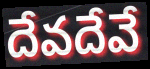
దేవదేవే